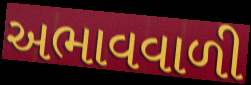
અભાવવાળી